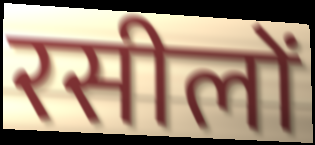
रसीलों